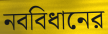
নববিধানের